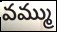
వమ్ము